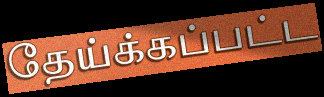
தேய்க்கப்பட்ட